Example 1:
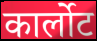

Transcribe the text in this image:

कार्लोट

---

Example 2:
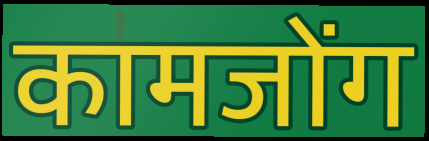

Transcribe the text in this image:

कामजोंग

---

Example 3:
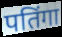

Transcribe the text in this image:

पतिंगा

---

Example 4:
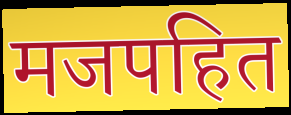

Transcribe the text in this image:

मजपहित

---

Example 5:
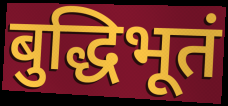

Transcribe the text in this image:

बुद्धिभूतं